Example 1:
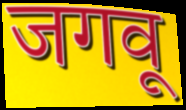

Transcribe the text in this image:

जगवू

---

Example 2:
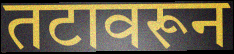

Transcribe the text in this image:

तटावरून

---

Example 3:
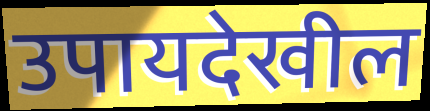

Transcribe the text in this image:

उपायदेखील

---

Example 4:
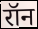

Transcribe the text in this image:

रॉन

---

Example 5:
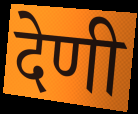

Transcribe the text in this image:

देणी